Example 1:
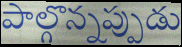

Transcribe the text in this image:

పాల్గొన్నప్పుడు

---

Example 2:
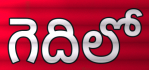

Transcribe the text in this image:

గెదిలో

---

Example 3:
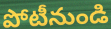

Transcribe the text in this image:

పోటీనుండి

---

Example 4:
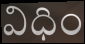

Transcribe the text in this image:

విధిం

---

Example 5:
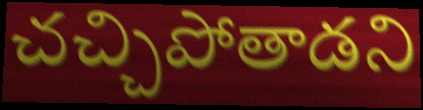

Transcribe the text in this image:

చచ్చిపోతాడని